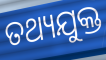
ତଥ୍ୟଯୁକ୍ତ